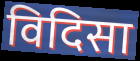
विदिसा